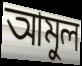
আমুল